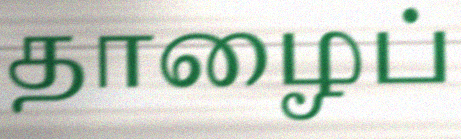
தாழைப்